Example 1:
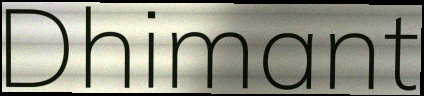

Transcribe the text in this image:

Dhimant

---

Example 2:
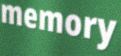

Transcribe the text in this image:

memory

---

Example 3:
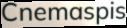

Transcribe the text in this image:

Cnemaspis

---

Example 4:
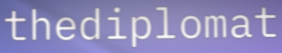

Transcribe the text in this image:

thediplomat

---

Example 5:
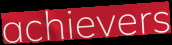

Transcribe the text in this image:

achievers